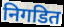
निगडित